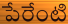
పేరేంటి